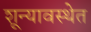
शून्यावस्थेत